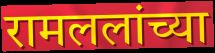
रामललांच्या